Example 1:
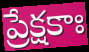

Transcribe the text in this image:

ప్రేక్షకాః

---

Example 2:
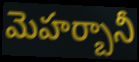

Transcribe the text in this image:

మెహర్బానీ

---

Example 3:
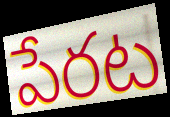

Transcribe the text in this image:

పేరట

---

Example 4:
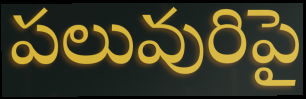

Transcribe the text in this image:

పలువురిపై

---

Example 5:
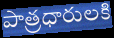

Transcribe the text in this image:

పాత్రధారులకి